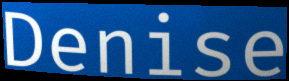
Denise